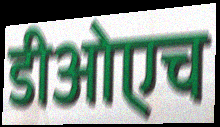
डीओएच